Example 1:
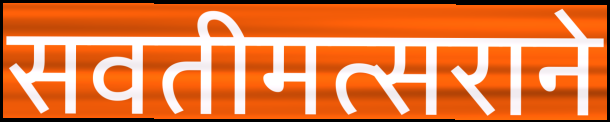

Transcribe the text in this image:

सवतीमत्सराने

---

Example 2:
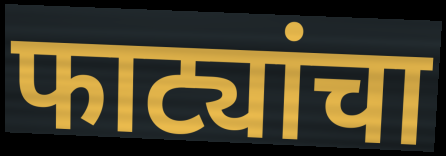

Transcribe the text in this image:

फाट्यांचा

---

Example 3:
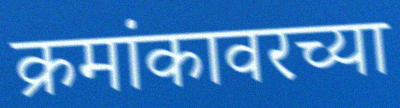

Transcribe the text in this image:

क्रमांकावरच्या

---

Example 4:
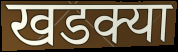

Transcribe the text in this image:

खडक्या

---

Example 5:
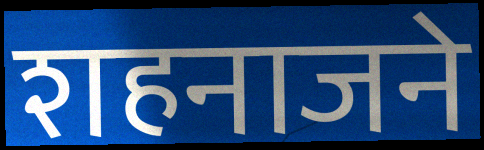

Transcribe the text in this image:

शहनाजने